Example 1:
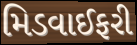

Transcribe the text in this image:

મિડવાઈફરી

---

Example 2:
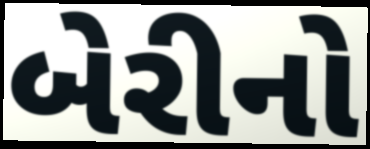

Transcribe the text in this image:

બેરીનો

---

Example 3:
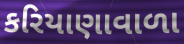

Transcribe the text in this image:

કરિયાણાવાળા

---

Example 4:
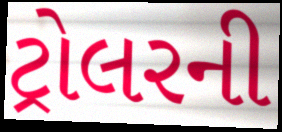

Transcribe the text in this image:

ટ્રોલરની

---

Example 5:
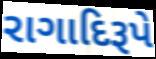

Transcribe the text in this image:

રાગાદિરૂપે